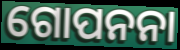
ଗୋପନନା